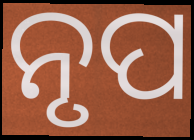
ନୃପ